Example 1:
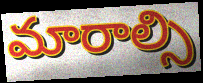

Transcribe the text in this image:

మారాల్సి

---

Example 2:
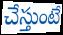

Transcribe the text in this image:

చేస్తుంటే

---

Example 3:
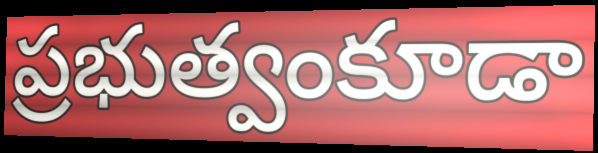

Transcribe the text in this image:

ప్రభుత్వంకూడా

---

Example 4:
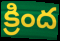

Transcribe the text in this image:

క్రింద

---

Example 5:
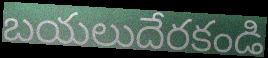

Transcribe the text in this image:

బయలుదేరకండి